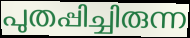
പുതപ്പിച്ചിരുന്ന